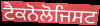
ਟੈਕਨੋਲੋਜਿਸਟ